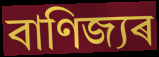
বাণিজ্যৰ